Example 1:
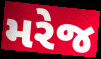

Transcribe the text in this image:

મરેજ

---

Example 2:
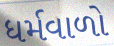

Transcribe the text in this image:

ધર્મવાળો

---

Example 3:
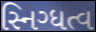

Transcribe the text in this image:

સ્નિગ્ધત્વ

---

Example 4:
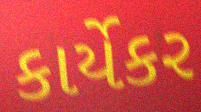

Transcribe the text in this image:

કાર્યેકર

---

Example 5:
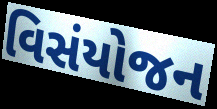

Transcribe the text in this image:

વિસંયોજન